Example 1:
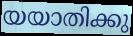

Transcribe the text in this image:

യയാതിക്കു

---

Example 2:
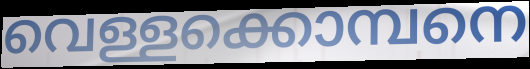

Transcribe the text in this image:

വെള്ളക്കൊമ്പനെ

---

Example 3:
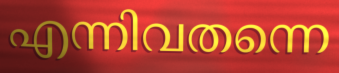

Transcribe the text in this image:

എന്നിവതന്നെ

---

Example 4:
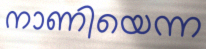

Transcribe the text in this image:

നാണിയെന്ന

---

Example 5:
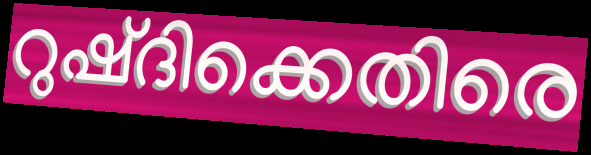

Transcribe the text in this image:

റുഷ്ദിക്കെതിരെ